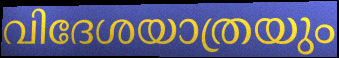
വിദേശയാത്രയും